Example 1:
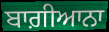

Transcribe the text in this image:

ਬਾਗ਼ੀਆਨਾ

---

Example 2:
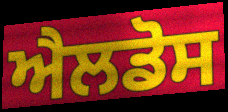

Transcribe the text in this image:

ਐਲਡੋਸ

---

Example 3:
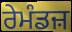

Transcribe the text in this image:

ਰੇਮੰਡਜ਼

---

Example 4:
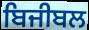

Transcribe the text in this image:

ਬਿਜੀਬਲ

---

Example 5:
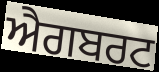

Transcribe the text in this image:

ਐਗਬਰਟ